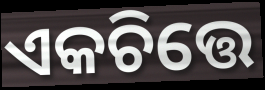
ଏକଚିତ୍ତେ